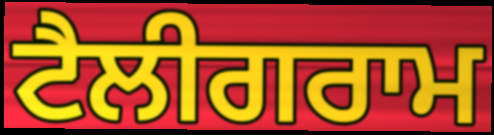
ਟੈਲੀਗਰਾਮ